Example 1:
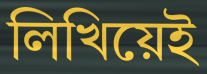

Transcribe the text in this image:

লিখিয়েই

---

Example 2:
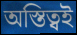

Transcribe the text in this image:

অস্তিত্বই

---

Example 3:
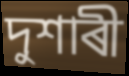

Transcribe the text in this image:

দুশাৰী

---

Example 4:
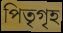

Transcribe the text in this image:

পিতৃগৃহ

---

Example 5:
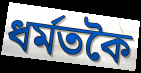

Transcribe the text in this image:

ধৰ্মতকৈ